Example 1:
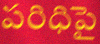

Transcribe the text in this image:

పరిధిపై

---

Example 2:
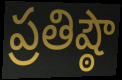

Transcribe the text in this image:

ప్రతిష్ఠౌ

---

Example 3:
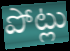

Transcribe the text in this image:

పోట్లు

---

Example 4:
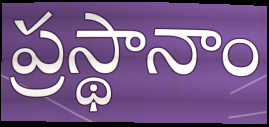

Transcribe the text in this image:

ప్రస్థానాం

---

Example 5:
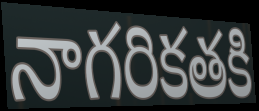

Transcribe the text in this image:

నాగరికతకి